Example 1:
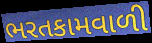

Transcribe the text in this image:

ભરતકામવાળી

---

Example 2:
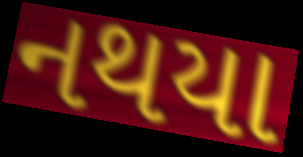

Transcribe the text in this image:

નથયા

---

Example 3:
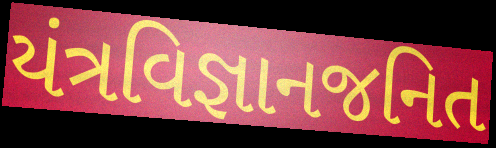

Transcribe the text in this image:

યંત્રવિજ્ઞાનજનિત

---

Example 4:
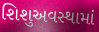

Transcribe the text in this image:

શિશુઅવસ્થામાં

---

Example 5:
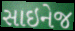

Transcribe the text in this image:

સાઇનેજ